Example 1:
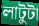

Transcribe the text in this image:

লাটুটা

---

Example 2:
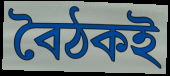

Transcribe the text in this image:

বৈঠকই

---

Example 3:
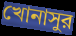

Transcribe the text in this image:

খোনাসুর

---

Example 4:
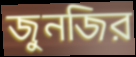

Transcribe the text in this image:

জুনজির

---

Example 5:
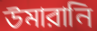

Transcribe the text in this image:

উমারানি